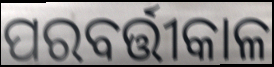
ପରବର୍ତ୍ତୀକାଳ